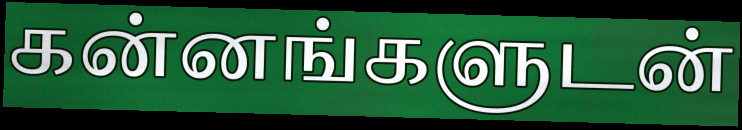
கன்னங்களுடன்